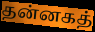
தன்னகத்